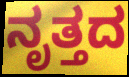
ನೃತ್ತದ